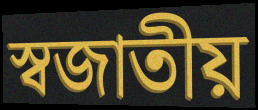
স্বজাতীয়